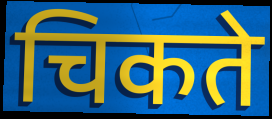
चिकते